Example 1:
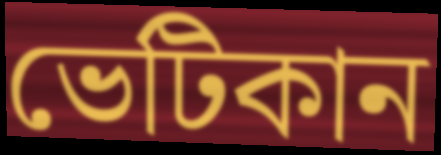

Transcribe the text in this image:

ভেটিকান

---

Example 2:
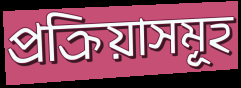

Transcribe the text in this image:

প্ৰক্ৰিয়াসমূহ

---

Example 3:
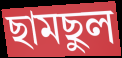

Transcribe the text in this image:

ছামছুল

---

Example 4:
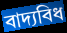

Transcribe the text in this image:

বাদ্যবিধ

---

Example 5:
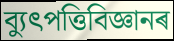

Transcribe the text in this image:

ব্যুৎপত্তিবিজ্ঞানৰ